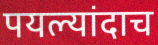
पयल्यांदाच